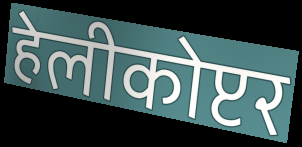
हेलीकोप्टर